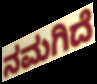
ನಮಗಿದೆ